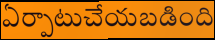
ఏర్పాటుచేయబడింది